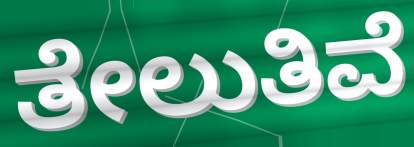
ತೇಲುತಿವೆ